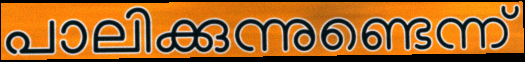
പാലിക്കുന്നുണ്ടെന്ന്